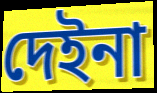
দেইনা